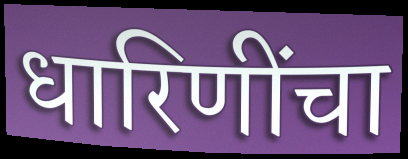
धारिणींचा